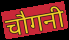
चौगनी